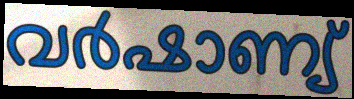
വർഷാണ്യ്